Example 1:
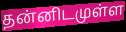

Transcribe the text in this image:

தன்னிடமுள்ள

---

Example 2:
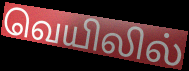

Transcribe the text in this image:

வெயிலில்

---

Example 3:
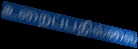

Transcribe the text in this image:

உறைப்பதில்லை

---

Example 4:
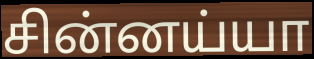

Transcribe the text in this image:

சின்னய்யா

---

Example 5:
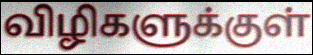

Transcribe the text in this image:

விழிகளுக்குள்